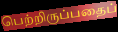
பெற்றிருப்பதைப்